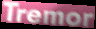
Tremor